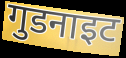
गुडनाइट